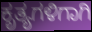
ಕೃತ್ಯಗಳಿಗಾಗಿ